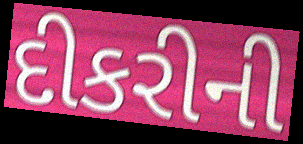
દીકરીની